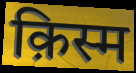
क़िस्‍म